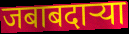
जबाबदार्‍या